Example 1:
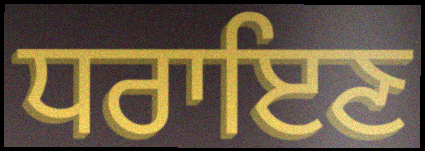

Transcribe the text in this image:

ਧਰਾਇਣ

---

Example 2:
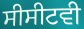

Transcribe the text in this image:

ਸੀਸੀਟਵੀ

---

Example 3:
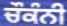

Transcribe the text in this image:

ਚੌਕੰਨੀ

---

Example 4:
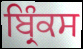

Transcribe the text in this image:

ਬ੍ਰਿੰਕਸ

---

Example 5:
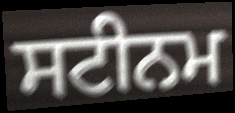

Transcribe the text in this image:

ਸਟੀਨਮ